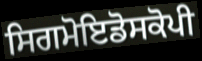
ਸਿਗਮੋਇਡੋਸਕੋਪੀ